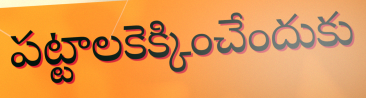
పట్టాలకెక్కించేందుకు